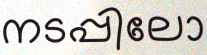
നടപ്പിലോ